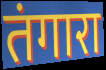
तंगारा